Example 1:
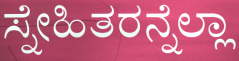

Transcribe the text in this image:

ಸ್ನೇಹಿತರನ್ನೆಲ್ಲಾ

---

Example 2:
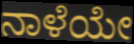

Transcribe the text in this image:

ನಾಳೆಯೇ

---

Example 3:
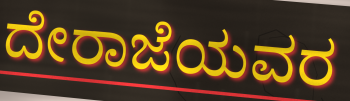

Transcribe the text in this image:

ದೇರಾಜೆಯವರ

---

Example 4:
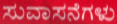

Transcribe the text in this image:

ಸುವಾಸನೆಗಳು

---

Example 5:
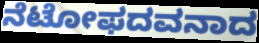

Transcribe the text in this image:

ನೆಟೋಫದವನಾದ